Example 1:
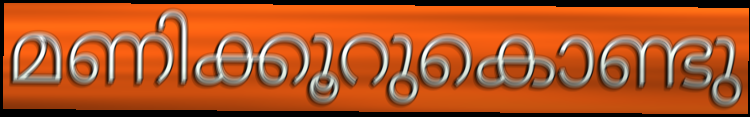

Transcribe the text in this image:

മണിക്കൂറുകൊണ്ടു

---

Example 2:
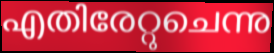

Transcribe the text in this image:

എതിരേറ്റുചെന്നു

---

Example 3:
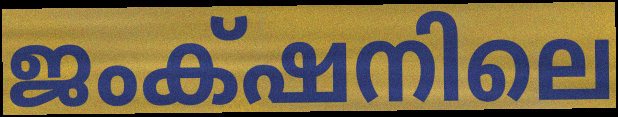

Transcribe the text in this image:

ജംക്‌ഷനിലെ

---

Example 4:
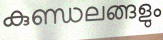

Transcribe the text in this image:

കുണ്ഡലങ്ങളും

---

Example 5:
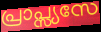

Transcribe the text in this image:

പ്രാപ്സ്യസേ